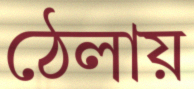
ঠেলায়